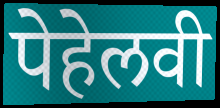
पेहेलवी